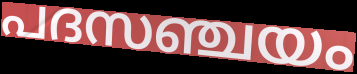
പദസഞ്ചയം